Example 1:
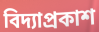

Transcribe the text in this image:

বিদ্যাপ্রকাশ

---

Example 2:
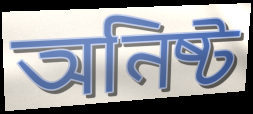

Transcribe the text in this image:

অনিষ্ট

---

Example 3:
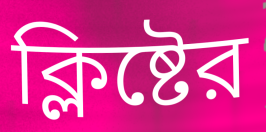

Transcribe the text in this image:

ক্লিষ্টের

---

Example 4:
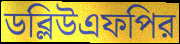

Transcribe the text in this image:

ডব্লিউএফপির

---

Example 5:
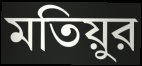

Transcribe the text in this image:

মতিয়ুর